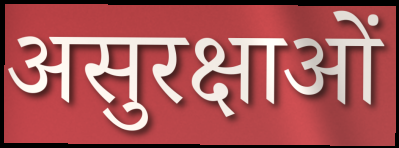
असुरक्षाओं